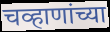
चव्हाणांच्या